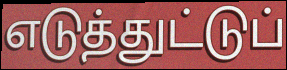
எடுத்துட்டுப்